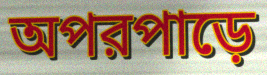
অপরপাড়ে